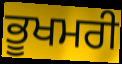
ਭੂਖਮਰੀ